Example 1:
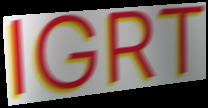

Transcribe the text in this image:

IGRT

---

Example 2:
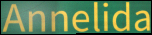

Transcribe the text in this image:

Annelida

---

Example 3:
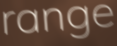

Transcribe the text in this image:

range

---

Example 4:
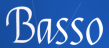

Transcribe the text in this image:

Basso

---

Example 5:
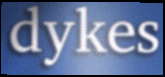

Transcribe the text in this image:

dykes